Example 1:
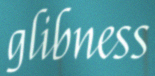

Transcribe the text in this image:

glibness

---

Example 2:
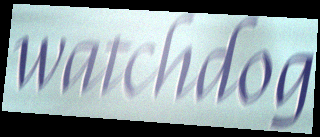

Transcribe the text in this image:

watchdog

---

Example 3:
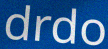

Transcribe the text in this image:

drdo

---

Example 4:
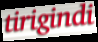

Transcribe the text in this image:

tirigindi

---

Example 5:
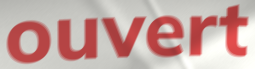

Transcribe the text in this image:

ouvert